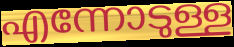
എന്നോടുള്ള